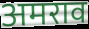
अमराव